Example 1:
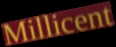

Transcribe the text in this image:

Millicent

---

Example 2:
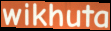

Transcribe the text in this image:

wikhuta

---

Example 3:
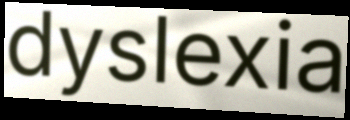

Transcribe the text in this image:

dyslexia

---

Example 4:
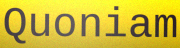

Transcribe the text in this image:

Quoniam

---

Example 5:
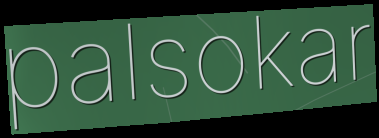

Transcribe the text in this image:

palsokar